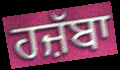
ਹਜ਼ੱਬਾ